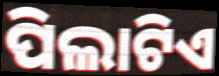
ପିଲାଟିଏ